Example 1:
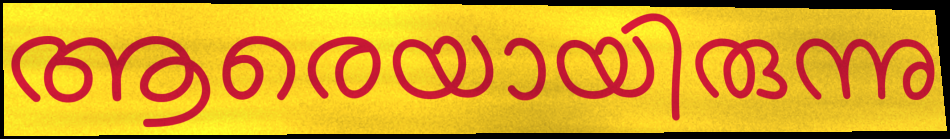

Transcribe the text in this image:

ആരെയായിരുന്നു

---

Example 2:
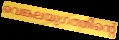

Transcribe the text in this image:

വെങ്കലയുഗത്തിന്റെ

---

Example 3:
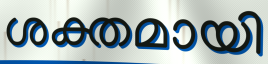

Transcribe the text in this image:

ശക്തമായി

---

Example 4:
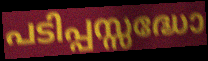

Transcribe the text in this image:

പടിപ്പസ്സദ്ധോ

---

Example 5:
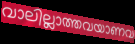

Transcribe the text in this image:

വാലില്ലാത്തവയാണവ